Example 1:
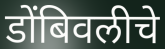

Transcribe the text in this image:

डोंबिवलीचे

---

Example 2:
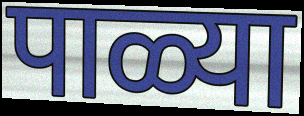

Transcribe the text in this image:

पाळ्या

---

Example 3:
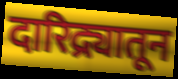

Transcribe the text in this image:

दारिद्र्यातून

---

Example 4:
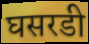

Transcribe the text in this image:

घसरडी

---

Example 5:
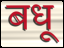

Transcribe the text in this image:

बधू